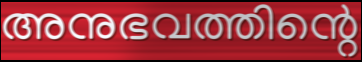
അനുഭവത്തിന്റെ